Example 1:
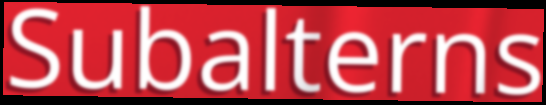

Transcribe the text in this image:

Subalterns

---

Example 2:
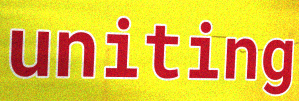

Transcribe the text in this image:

uniting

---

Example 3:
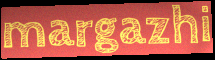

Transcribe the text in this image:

margazhi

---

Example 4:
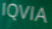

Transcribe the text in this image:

IQVIA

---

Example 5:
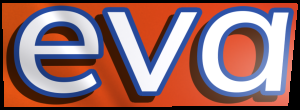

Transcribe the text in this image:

eva